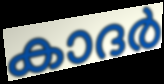
കാദർ